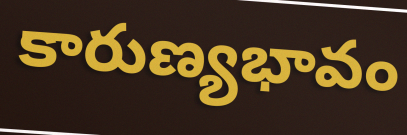
కారుణ్యభావం